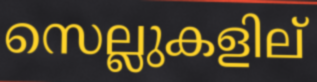
സെല്ലുകളില്